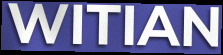
WITIAN